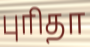
புரிதா